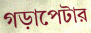
গড়াপেটার